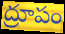
ద్రూపం